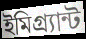
ইমিগ্র্যান্ট